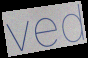
ved